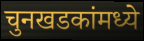
चुनखडकांमध्ये